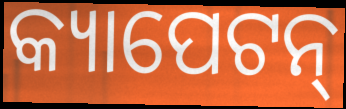
କ୍ୟାପେଟନ୍